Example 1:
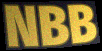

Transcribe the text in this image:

NBB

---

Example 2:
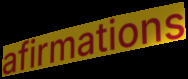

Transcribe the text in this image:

afirmations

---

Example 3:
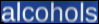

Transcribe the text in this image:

alcohols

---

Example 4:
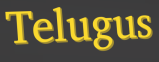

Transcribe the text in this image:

Telugus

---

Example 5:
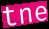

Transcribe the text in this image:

tne